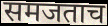
समजताच